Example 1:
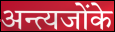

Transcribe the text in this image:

अन्त्यजोंके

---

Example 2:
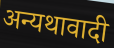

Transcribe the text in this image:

अन्यथावादी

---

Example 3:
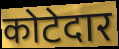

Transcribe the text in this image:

कोटेदार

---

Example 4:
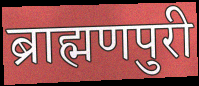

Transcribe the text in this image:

ब्राह्मणपुरी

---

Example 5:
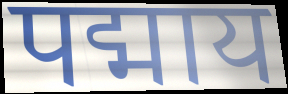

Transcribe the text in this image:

पद्माय